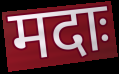
मदाः